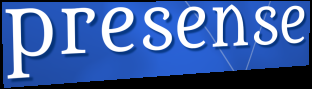
presense